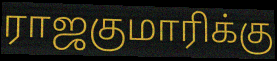
ராஜகுமாரிக்கு